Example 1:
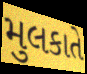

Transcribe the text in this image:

મુલકાતે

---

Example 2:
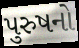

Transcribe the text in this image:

પુરુષનો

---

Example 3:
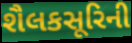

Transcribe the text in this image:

શૈલકસૂરિની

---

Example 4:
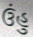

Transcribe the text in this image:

ઉંહુ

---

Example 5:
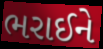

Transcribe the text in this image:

ભરાઈને